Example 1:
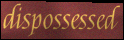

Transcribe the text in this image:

dispossessed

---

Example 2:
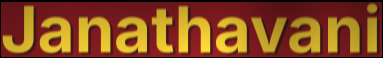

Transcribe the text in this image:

Janathavani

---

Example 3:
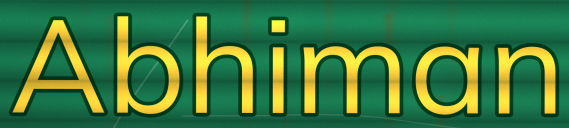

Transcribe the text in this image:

Abhiman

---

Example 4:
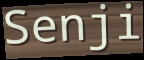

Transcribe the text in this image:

Senji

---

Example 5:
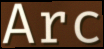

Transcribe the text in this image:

Arc